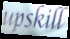
upskill